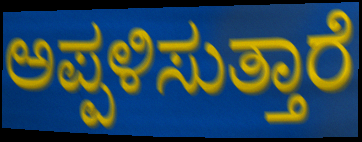
ಅಪ್ಪಳಿಸುತ್ತಾರೆ